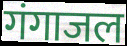
गंगाजल